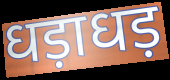
धड़ाधड़